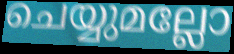
ചെയ്യുമല്ലോ